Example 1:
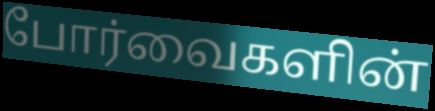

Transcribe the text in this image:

போர்வைகளின்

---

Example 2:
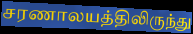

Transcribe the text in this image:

சரணாலயத்திலிருந்து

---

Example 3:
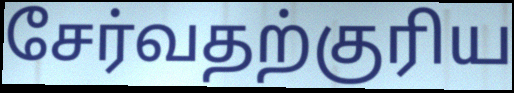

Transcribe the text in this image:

சேர்வதற்குரிய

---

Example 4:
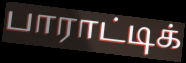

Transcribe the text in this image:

பாராட்டிக்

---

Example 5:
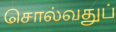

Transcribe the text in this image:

சொல்வதுப்